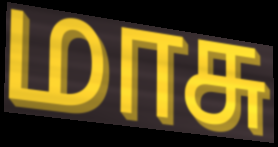
மாசு